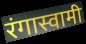
रंगास्वामी